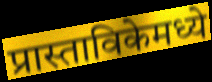
प्रास्ताविकेमध्ये